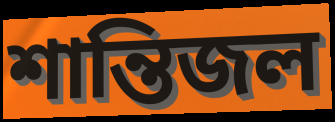
শান্তিজল